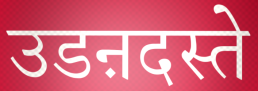
उडऩदस्ते